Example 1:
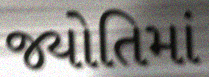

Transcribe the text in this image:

જ્યોતિમાં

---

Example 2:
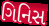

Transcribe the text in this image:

ગિનિસ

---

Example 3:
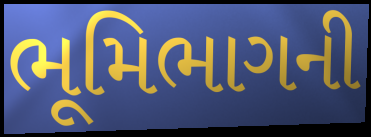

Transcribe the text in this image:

ભૂમિભાગની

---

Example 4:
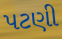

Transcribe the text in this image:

પટણી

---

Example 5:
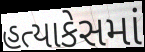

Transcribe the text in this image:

હત્યાકેસમાં